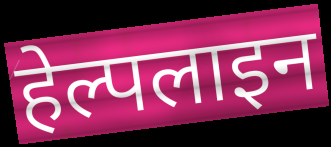
हेल्पलाइन